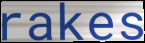
rakes